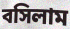
বসিলাম